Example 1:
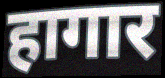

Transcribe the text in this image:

हागार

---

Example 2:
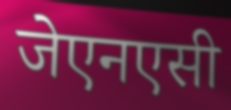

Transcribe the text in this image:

जेएनएसी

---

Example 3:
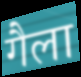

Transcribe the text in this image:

गैला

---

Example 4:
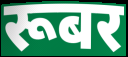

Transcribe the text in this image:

रूबर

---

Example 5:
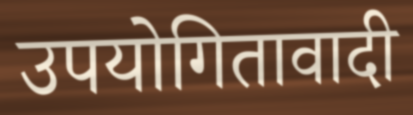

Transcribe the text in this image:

उपयोगितावादी